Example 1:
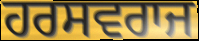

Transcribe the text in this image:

ਹਰਸਵਰਾਜ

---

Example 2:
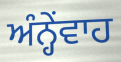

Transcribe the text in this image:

ਅੰਨ੍ਹੇਂਵਾਹ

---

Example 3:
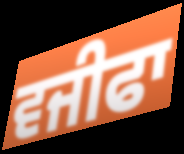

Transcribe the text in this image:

ਵਜੀਫਾ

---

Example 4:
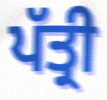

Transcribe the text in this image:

ਪੱਤ੍ਰੀ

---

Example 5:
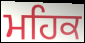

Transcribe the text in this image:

ਮਹਿਕ